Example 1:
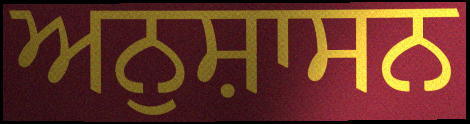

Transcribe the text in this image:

ਅਨੁਸ਼ਾਸਨ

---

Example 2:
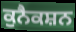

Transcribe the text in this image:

ਕੁਨੈਕਸ਼ਨ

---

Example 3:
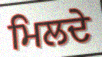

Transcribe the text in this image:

ਮਿਲਦੇ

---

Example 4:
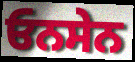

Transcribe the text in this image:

ਓਨਸੇਨ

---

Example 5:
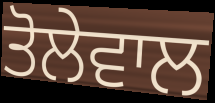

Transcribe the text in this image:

ਤੋਲੇਵਾਲ